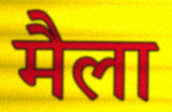
मैला